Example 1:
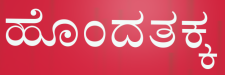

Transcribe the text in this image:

ಹೊಂದತಕ್ಕ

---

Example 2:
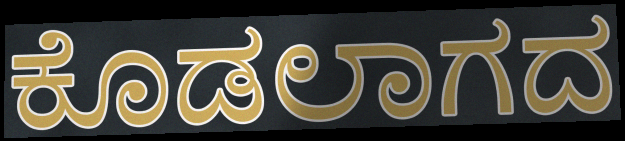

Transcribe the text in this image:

ಕೊಡಲಾಗದ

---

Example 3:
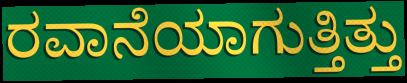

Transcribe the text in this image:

ರವಾನೆಯಾಗುತ್ತಿತ್ತು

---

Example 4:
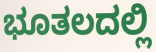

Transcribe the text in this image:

ಭೂತಲದಲ್ಲಿ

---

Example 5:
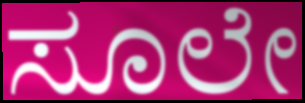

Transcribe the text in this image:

ಸೂಲೇ